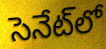
సెనేట్‌లో